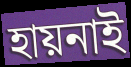
হায়নাই